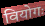
वियोगः